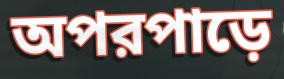
অপরপাড়ে